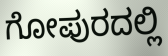
ಗೋಪುರದಲ್ಲಿ